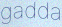
gadda